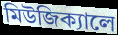
মিউজিক্যালে